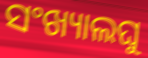
ସଂଖ୍ୟାଲଘୁ